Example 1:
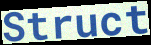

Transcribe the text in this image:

Struct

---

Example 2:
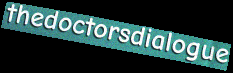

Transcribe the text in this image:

thedoctorsdialogue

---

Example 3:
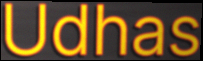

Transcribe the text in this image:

Udhas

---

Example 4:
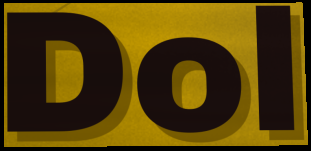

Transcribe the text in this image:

Dol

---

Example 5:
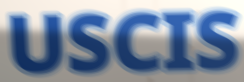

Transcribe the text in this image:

USCIS